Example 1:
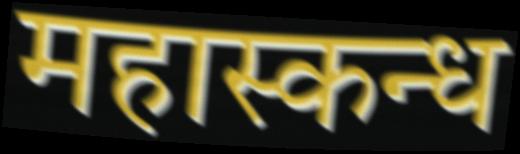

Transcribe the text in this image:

महास्कन्ध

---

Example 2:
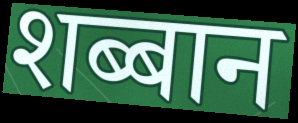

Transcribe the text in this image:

शब्बान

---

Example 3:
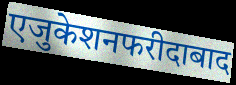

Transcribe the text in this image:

एजुकेशनफरीदाबाद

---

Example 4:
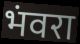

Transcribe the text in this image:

भंवरा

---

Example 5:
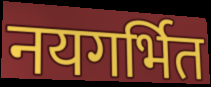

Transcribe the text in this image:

नयगर्भित